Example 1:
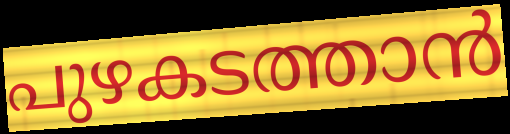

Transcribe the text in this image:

പുഴകടത്താൻ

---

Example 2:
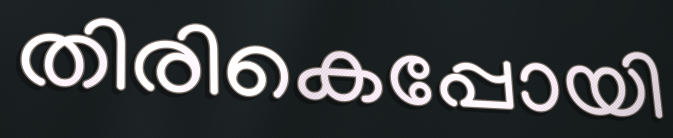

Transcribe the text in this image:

തിരികെപ്പോയി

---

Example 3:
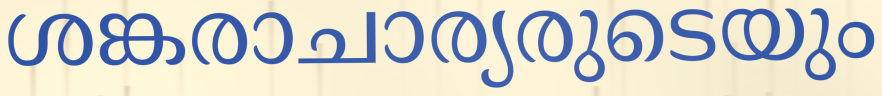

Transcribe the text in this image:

ശങ്കരാചാര്യരുടെയും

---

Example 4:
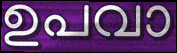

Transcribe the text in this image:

ഉപവാ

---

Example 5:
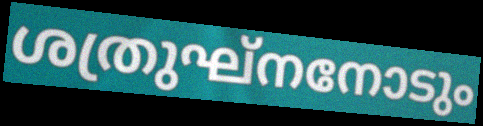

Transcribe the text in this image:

ശത്രുഘ്നനോടും